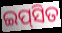
ଇପ୍‌ସିତ